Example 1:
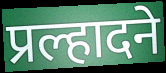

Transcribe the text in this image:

प्रल्हादने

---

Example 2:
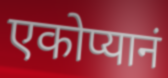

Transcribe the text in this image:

एकोप्यानं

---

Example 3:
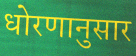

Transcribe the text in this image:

धोरणानुसार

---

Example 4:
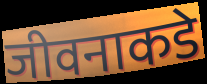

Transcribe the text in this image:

जीवनाकडे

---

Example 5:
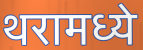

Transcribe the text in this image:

थरामध्ये